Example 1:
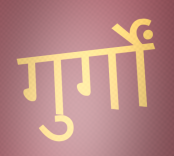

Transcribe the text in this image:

गुर्गों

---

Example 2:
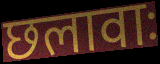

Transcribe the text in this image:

छलावाः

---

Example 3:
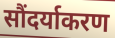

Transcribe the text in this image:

सौंदर्याकरण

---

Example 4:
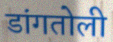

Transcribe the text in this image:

डांगतोली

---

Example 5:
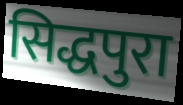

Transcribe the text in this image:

सिद्धपुरा